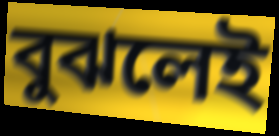
বুঝলেই